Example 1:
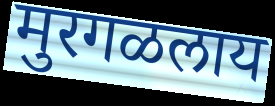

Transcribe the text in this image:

मुरगळलाय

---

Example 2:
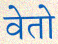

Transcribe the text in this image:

वेतो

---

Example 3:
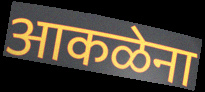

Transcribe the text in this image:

आकळेना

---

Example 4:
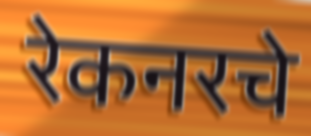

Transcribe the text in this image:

रेकनरचे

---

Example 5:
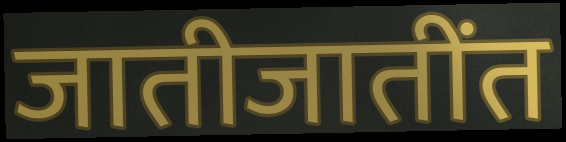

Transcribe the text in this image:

जातीजातींत